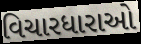
વિચારધારાઓ